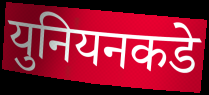
युनियनकडे